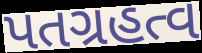
પતગ્રહત્વ